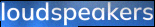
loudspeakers